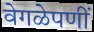
वेगळेपणीं